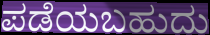
ಪಡೆಯಬಹುದು